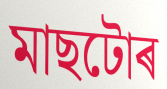
মাছটোৰ